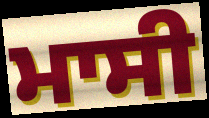
ਮਾਸੀ